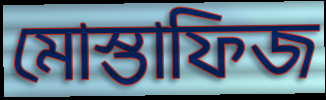
মোস্তাফিজ